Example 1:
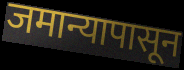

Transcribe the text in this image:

जमान्यापासून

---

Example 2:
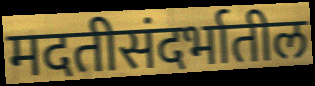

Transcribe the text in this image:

मदतीसंदर्भातील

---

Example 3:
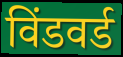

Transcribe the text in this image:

विंडवर्ड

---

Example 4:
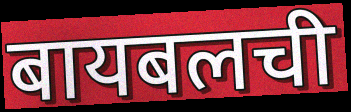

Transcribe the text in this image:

बायबलची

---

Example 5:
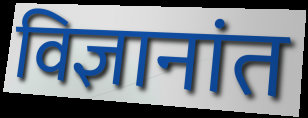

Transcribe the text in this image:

विज्ञानांत